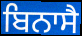
ਬਿਨਾਸੈ